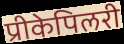
प्रीकेपिलरी